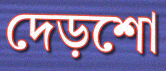
দেড়শো